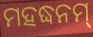
ମହଦ୍ଧନମ୍